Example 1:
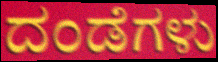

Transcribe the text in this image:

ದಂಡೆಗಳು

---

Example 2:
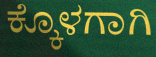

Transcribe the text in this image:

ಕ್ಕೊಳಗಾಗಿ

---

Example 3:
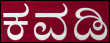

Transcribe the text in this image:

ಕವಡಿ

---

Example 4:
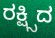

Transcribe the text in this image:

ರಕ್ಷ್ಸಿದ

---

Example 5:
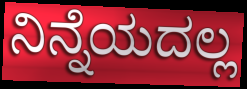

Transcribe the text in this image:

ನಿನ್ನೆಯದಲ್ಲ